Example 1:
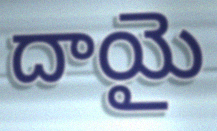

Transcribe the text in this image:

దాయై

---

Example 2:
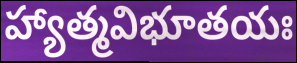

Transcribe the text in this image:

హ్యాత్మవిభూతయః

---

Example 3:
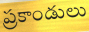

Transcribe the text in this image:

ప్రకాండులు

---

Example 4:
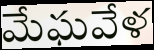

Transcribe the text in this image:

మేఘవేళ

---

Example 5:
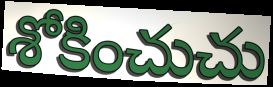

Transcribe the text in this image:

శోకించుచు